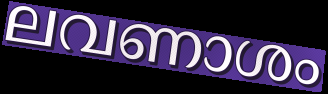
ലവണാശം